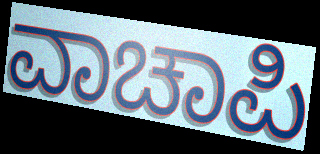
ವಾಚಾಪಿ